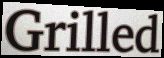
Grilled